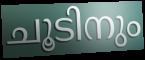
ചൂടിനും